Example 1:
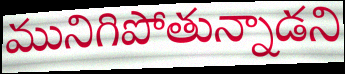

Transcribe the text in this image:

మునిగిపోతున్నాడని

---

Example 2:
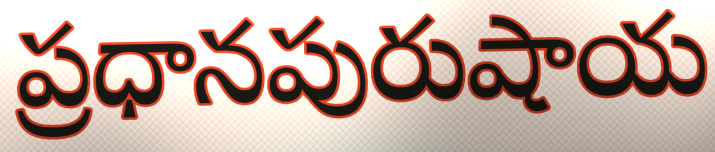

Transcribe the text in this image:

ప్రధానపురుషాయ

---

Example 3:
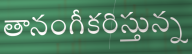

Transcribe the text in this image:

తానంగీకరిస్తున్న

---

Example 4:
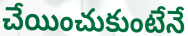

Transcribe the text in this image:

చేయించుకుంటేనే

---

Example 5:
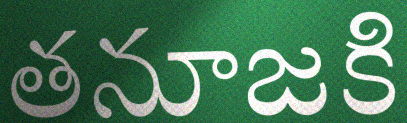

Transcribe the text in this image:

తనూజకి